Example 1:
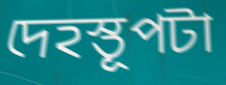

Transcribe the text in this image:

দেহস্তূপটা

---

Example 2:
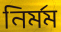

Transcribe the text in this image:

নির্মম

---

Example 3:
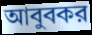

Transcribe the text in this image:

আবুবকর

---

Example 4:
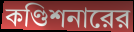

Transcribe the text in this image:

কণ্ডিশনারের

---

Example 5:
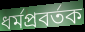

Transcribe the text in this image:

ধর্মপ্রবর্তক